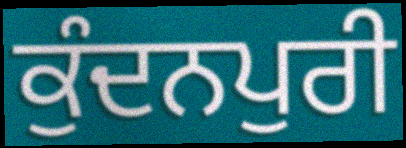
ਕੁੰਦਨਪੁਰੀ